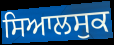
ਸਿਆਲਸੁਕ